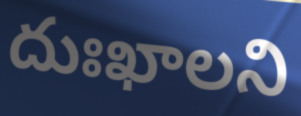
దుఃఖాలని